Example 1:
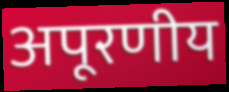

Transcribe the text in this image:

अपूरणीय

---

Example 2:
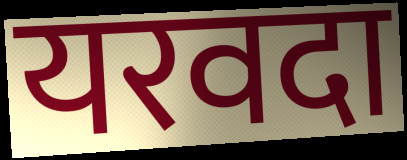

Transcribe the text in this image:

यरवदा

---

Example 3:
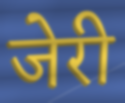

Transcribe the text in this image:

जेरी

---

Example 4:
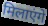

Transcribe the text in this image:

मिलाएंगे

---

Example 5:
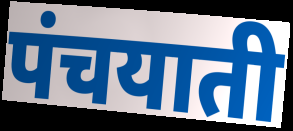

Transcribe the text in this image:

पंचयाती